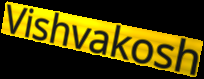
Vishvakosh